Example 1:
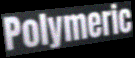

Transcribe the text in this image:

Polymeric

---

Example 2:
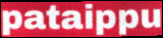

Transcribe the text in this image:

pataippu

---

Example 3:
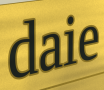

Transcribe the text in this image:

daie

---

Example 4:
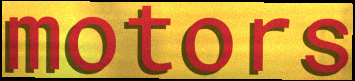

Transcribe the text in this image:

motors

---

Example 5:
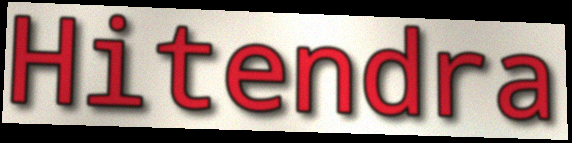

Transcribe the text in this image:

Hitendra